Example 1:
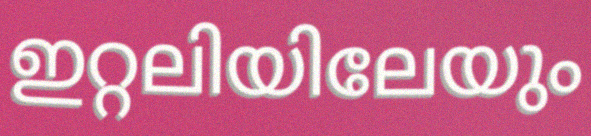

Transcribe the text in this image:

ഇറ്റലിയിലേയും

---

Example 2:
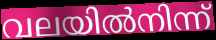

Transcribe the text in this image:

വലയിൽനിന്ന്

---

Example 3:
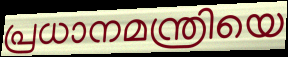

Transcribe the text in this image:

പ്രധാനമന്ത്രിയെ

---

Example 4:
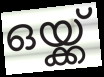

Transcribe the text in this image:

ഒയ്ക്ക്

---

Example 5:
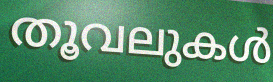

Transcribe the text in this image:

തൂവലുകൾ